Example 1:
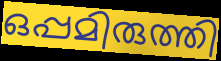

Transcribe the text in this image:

ഒപ്പമിരുത്തി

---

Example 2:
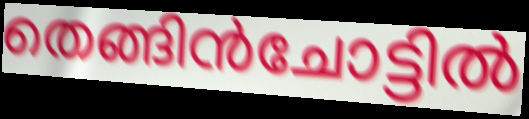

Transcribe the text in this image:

തെങ്ങിൻചോട്ടിൽ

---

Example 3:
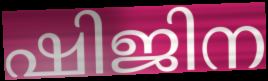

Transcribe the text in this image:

ഷിജിന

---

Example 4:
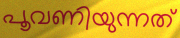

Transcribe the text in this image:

പൂവണിയുന്നത്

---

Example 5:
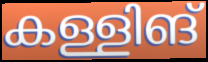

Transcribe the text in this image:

കള്ളിങ്